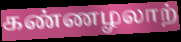
கண்ணழலாற்